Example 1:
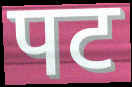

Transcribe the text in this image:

पट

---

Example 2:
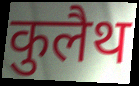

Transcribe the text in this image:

कुलैथ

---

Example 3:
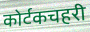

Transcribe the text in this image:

कोर्टकचहरी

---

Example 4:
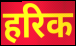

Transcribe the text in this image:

हरिक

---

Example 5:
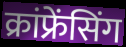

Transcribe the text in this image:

क्रांफ्रेंसिंग